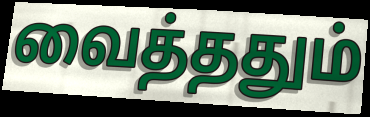
வைத்ததும்